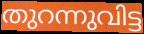
തുറന്നുവിട്ട